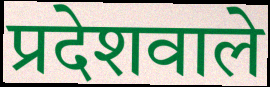
प्रदेशवाले